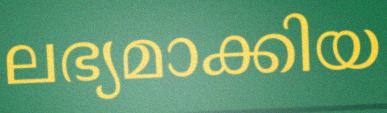
ലഭ്യമാക്കിയ